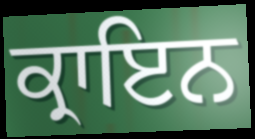
ਕ੍ਰਾਇਨ